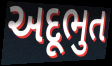
અદૂભુત